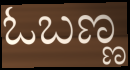
ಓಬಣ್ಣ